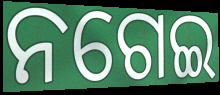
ନଗେଇ